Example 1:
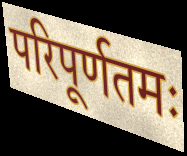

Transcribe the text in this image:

परिपूर्णतमः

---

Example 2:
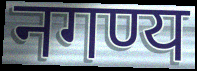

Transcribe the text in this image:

नगण्य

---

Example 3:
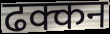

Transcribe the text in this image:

ढक्कन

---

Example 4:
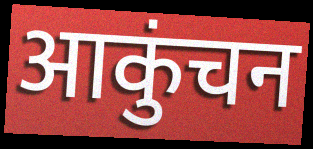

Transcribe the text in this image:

आकुंचन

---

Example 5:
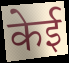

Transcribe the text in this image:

केई